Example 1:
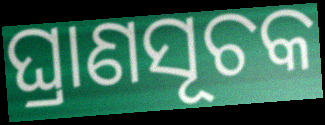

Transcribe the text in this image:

ଘ୍ରାଣସୂଚକ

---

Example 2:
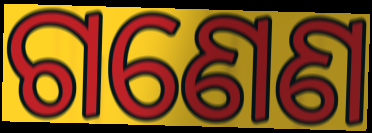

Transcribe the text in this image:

ଗଣେଣ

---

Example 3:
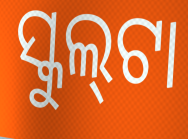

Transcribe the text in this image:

ସ୍କୁଲ୍‍ଟା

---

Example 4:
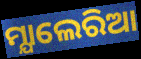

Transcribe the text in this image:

ମ୍ଯାଲେରିଆ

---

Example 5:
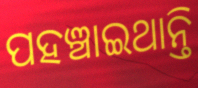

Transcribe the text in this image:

ପହଞ୍ଚାଇଥାନ୍ତି